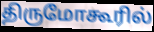
திருமோகூரில்